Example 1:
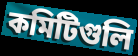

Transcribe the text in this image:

কমিটিগুলি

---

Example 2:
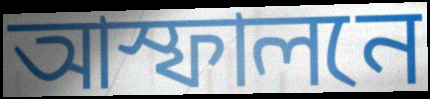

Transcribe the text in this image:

আস্ফালনে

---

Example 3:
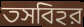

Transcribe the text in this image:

তসবিহর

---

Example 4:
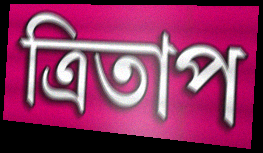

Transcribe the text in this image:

ত্রিতাপ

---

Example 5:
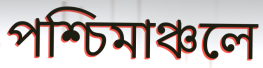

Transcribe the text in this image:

পশ্চিমাঞ্চলে